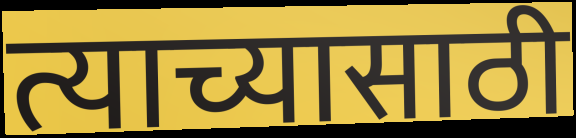
त्याच्यासाठी